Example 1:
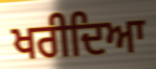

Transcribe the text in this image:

ਖਰੀਦਿਆ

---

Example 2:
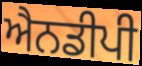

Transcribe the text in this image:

ਐਨਡੀਪੀ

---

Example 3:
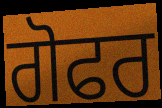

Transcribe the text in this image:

ਗੋਫਰ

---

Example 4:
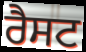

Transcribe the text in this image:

ਰੈਸਟ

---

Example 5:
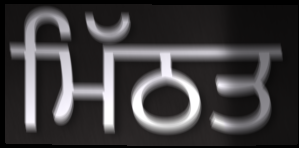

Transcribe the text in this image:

ਮਿੱਠਤ